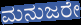
ಮನುಜರೇ